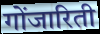
गोंजारिती